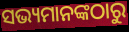
ସଭ୍ୟମାନଙ୍କଠାରୁ